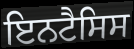
ਇਨਟੈਸਿਸ